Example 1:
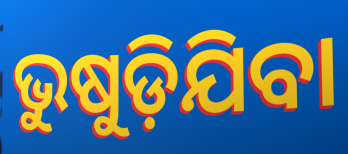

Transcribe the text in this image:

ଭୁଷୁଡ଼ିଯିବା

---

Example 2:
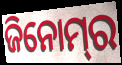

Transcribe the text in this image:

ଜିନୋମ୍‌ର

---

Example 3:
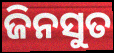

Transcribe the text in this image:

ଜିନସୁତ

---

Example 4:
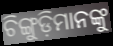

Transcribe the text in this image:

ଚିଙ୍ଗୁଡ଼ିମାନଙ୍କୁ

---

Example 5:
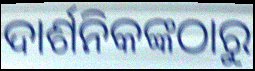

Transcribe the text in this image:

ଦାର୍ଶନିକଙ୍କଠାରୁ